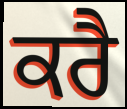
ਕਰੈ